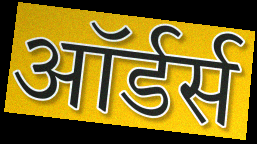
ऑर्डर्स